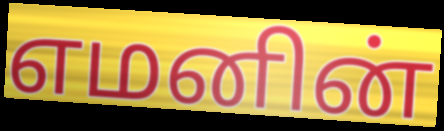
எமனின்